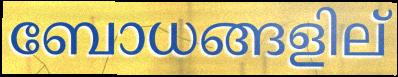
ബോധങ്ങളില്